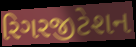
રિગરજીટેશન